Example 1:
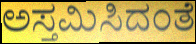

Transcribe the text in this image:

ಅಸ್ತಮಿಸಿದಂತೆ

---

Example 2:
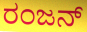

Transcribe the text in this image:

ರಂಜನ್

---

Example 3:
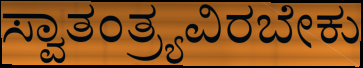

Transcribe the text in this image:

ಸ್ವಾತಂತ್ರ್ಯವಿರಬೇಕು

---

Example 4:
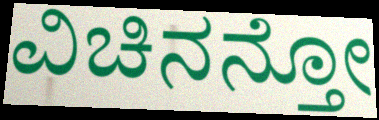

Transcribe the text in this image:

ವಿಚಿನನ್ತೋ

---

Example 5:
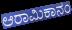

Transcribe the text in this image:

ಆರಾಮಿಕಾನಂ